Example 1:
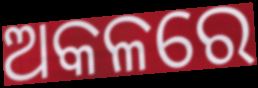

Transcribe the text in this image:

ଅକଳରେ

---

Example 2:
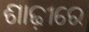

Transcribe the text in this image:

ଶାଢ଼ୀରେ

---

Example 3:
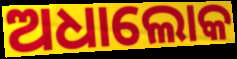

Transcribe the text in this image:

ଅଧାଲୋକ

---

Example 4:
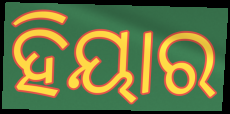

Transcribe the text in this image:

ହିୟାର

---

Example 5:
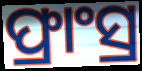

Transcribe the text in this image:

ଫ୍ରାଂସ୍ର